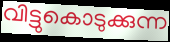
വിട്ടുകൊടുക്കുന്ന